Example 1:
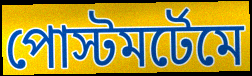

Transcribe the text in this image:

পোস্টমর্টেমে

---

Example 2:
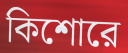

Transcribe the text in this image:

কিশোরে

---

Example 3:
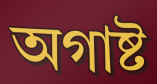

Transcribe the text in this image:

অগাষ্ট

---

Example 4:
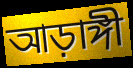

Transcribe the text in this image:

আড়াঙ্গী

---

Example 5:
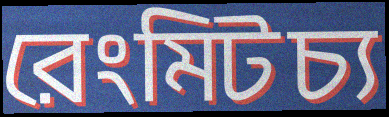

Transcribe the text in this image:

রেংমিটচ্য